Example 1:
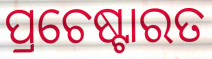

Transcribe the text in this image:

ପ୍ରଚେଷ୍ଟାରତ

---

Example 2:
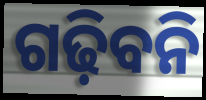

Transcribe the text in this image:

ଗଢ଼ିବନି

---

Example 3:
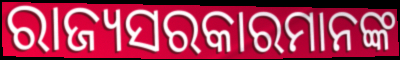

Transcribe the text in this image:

ରାଜ୍ୟସରକାରମାନଙ୍କ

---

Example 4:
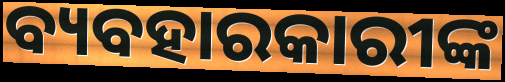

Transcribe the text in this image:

ବ୍ୟବହାରକାରୀଙ୍କ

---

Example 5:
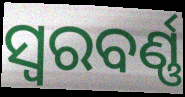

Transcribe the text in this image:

ସ୍ୱରବର୍ଣ୍ଣ